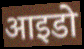
आइडो